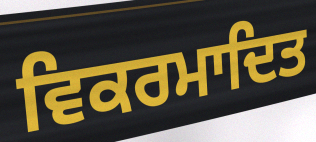
ਵਿਕਰਮਾਦਿਤ